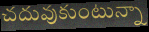
చదువుకుంటున్నా